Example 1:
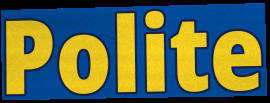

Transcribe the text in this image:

Polite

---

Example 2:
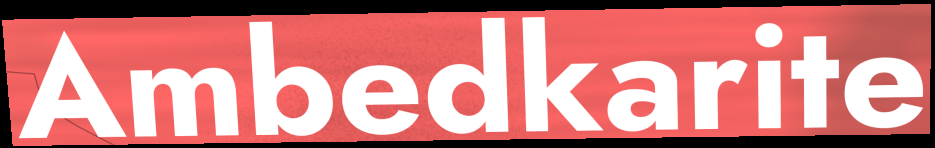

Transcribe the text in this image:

Ambedkarite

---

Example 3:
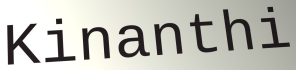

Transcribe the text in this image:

Kinanthi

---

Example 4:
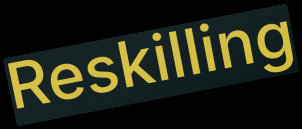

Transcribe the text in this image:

Reskilling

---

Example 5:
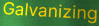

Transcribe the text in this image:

Galvanizing